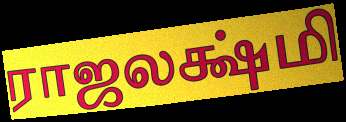
ராஜலக்ஷ்மி